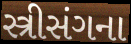
સ્ત્રીસંગના